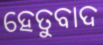
ହେତୁବାଦ